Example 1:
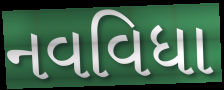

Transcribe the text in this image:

નવવિધા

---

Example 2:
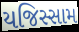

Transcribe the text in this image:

યજિસ્સામ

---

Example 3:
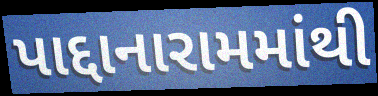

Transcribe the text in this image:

પાદ્દાનારામમાંથી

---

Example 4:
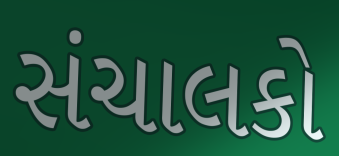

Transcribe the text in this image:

સંચાલકો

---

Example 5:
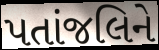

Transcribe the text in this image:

પતાંજલિને